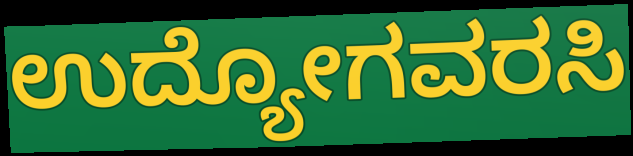
ಉದ್ಯೋಗವರಸಿ